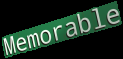
Memorable